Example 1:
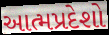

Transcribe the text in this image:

આત્મપ્રદેશો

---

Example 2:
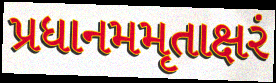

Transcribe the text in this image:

પ્રધાનમમૃતાક્ષરં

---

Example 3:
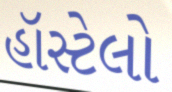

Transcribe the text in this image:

હૉસ્ટેલો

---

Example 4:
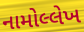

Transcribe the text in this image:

નામોલ્લેખ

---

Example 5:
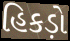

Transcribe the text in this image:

હિકડ઼ો